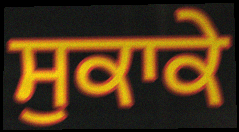
ਸੁਕਾਕੇ